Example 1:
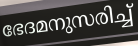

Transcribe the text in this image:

ഭേദമനുസരിച്ച്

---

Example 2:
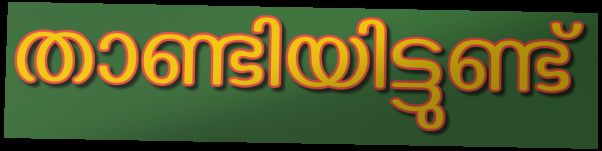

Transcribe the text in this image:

താണ്ടിയിട്ടുണ്ട്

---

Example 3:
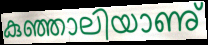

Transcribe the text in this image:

കുഞ്ഞാലിയാണു്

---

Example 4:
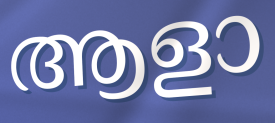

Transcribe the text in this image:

ആളാ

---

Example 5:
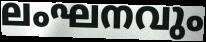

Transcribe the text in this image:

ലംഘനവും